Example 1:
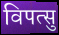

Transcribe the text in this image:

विपत्सु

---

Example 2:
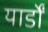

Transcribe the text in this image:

यार्डों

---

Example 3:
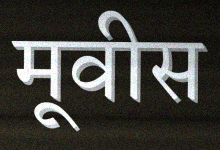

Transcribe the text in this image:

मूवीस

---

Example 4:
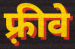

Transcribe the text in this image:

फ़्रीवे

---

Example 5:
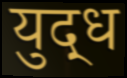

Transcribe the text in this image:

युद्ध